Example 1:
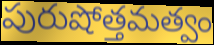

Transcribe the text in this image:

పురుషోత్తమత్వం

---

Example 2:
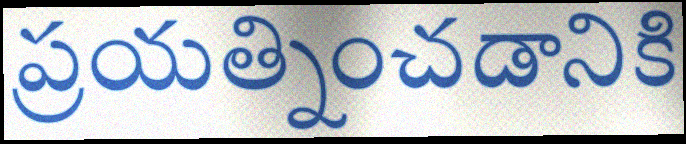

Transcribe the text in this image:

ప్రయత్నించడానికి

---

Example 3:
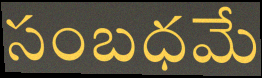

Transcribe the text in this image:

సంబధమే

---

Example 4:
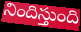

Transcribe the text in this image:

నిందిస్తుంది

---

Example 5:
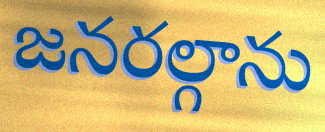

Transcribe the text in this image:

జనరల్గాను